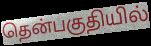
தென்பகுதியில்